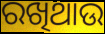
ରଖିଥାଉ